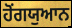
ਹੋਂਗਯੁਆਨ